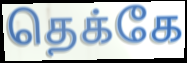
தெக்கே